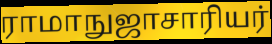
ராமாநுஜாசாரியர்